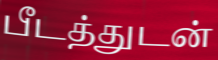
பீடத்துடன்